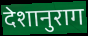
देशानुराग